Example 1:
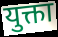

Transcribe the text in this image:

युक्ता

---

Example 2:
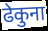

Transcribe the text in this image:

ढेकुना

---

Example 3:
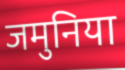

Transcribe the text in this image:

जमुनिया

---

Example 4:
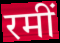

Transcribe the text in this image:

रमीं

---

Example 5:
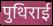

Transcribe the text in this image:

पुथिराई